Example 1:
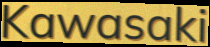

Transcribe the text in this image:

Kawasaki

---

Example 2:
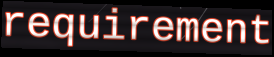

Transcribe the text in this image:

requirement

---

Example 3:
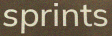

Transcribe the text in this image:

sprints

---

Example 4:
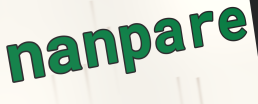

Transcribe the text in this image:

nanpare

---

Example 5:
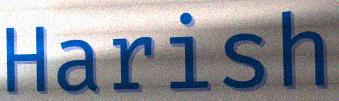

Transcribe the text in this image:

Harish